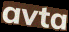
avta